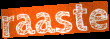
raaste